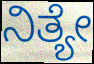
ನಿತ್ಯೇ